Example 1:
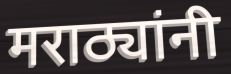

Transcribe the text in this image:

मराठ्यांनी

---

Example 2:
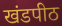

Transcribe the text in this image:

खंडपीठ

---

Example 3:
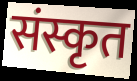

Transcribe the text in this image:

संस्‍कृत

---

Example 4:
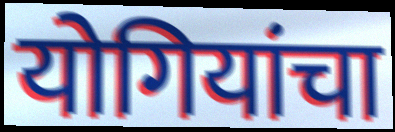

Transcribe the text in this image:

योगियांचा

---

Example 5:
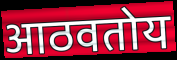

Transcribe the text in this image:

आठवतोय